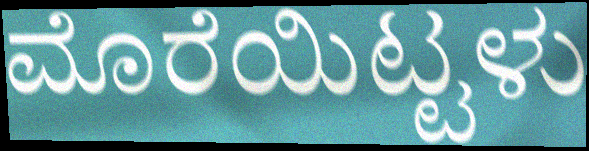
ಮೊರೆಯಿಟ್ಟಳು